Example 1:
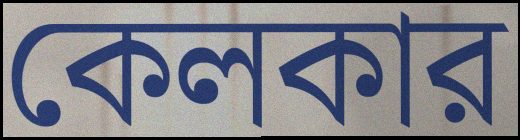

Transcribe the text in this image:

কেলকার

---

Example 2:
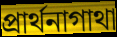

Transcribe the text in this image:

প্রার্থনাগাথা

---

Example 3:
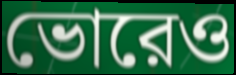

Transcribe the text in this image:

ভোরেও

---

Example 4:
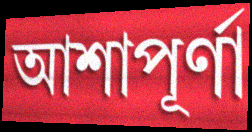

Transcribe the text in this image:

আশাপূর্ণা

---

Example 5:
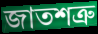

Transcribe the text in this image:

জাতশত্রু